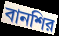
বানশির